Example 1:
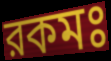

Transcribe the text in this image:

রকমঃ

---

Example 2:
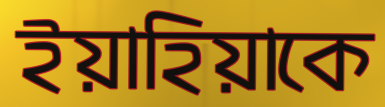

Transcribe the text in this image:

ইয়াহিয়াকে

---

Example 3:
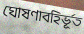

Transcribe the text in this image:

ঘোষণাবহির্ভূত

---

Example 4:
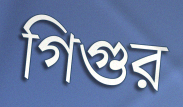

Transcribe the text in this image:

গিগুর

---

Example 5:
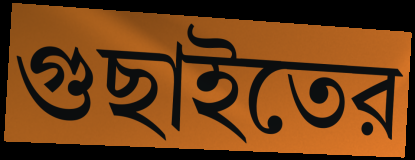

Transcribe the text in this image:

গুছাইতের